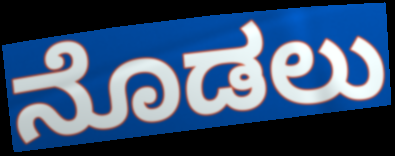
ನೊಡಲು